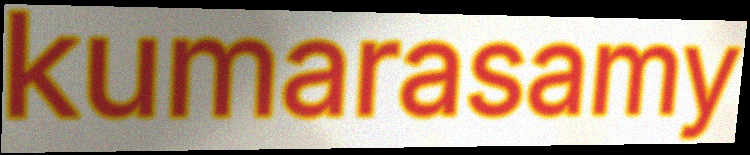
kumarasamy